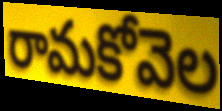
రామకోవెల